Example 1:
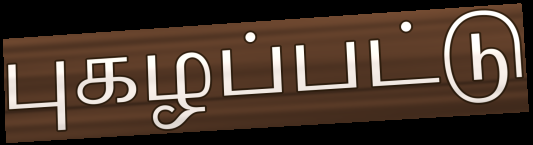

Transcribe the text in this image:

புகழப்பட்டு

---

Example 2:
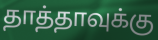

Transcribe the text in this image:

தாத்தாவுக்கு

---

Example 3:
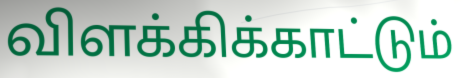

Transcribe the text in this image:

விளக்கிக்காட்டும்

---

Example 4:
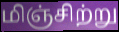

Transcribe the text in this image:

மிஞ்சிற்று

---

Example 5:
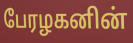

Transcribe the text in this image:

பேரழகனின்